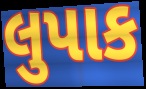
લુપાક